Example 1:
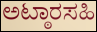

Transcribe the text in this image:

ಅಟ್ಠಾರಸಹಿ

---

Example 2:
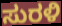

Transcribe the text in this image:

ಸುರಳಿ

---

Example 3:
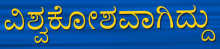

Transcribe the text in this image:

ವಿಶ್ವಕೋಶವಾಗಿದ್ದು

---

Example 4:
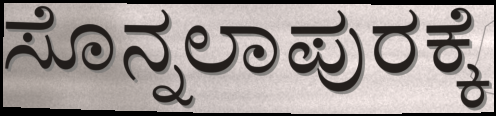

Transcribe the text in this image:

ಸೊನ್ನಲಾಪುರಕ್ಕೆ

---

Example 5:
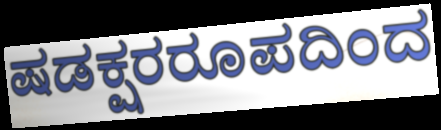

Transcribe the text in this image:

ಷಡಕ್ಷರರೂಪದಿಂದ